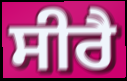
ਸੀਰੈ